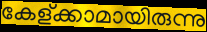
കേള്ക്കാമായിരുന്നു